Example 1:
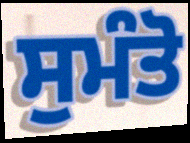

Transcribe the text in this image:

ਸੁਮੰਤੋ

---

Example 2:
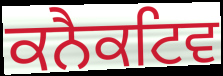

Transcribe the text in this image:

ਕਨੈਕਟਿਵ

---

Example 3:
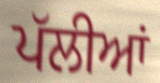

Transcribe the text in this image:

ਪੱਲੀਆਂ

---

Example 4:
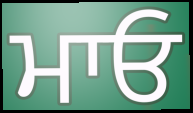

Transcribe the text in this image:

ਮਾਓ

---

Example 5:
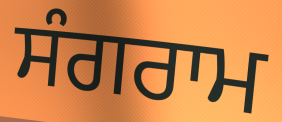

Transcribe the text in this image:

ਸੰਗਰਾਮ